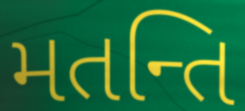
મતન્તિ